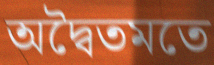
অদ্বৈতমতে